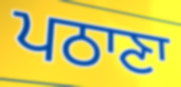
ਪਠਾਣਾ